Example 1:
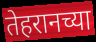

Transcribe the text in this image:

तेहरानच्या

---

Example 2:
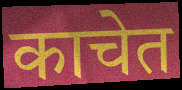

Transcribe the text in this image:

काचेत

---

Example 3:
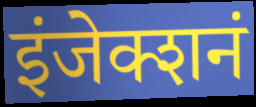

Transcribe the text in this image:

इंजेक्शनं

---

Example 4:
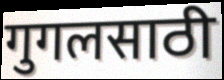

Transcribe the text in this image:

गुगलसाठी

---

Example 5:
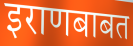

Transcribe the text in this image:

इराणबाबत